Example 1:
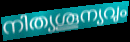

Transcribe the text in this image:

നിത്യശൂന്യവും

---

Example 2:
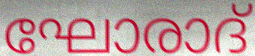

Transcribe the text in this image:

ഘോരാദ്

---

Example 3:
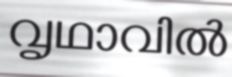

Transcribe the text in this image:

വൃഥാവിൽ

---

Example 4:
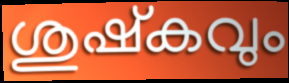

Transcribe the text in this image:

ശുഷ്കവും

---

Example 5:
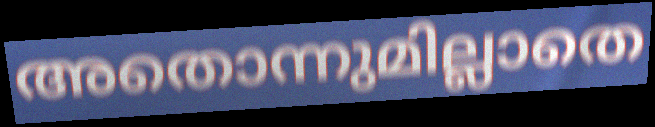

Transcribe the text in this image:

അതൊന്നുമില്ലാതെ